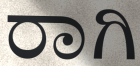
ರಾಗಿ